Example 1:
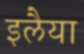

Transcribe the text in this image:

इलैया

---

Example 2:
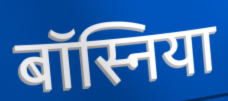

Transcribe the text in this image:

बॉस्निया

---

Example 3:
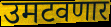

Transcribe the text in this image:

उमटवणार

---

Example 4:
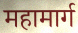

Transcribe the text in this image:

महामार्ग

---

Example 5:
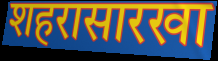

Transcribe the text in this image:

शहरासारखा